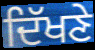
ਦਿੱਖਣੇ